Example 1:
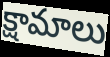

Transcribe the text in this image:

క్షామాలు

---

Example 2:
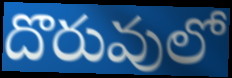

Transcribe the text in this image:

దొరువులో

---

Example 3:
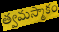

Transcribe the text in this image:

త్వమస్మాకం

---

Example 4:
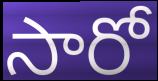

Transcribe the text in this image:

సారో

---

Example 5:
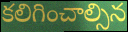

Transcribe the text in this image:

కలిగించాల్సిన